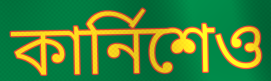
কার্নিশেও